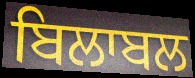
ਬਿਲਾਬਲ